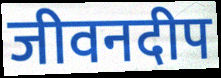
जीवनदीप